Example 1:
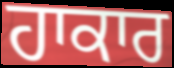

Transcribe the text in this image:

ਹਾਕਾਰ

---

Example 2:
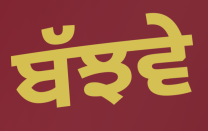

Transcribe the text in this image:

ਬੱਝਵੇ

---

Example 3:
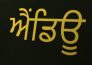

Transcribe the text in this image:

ਐਂਡਿਊ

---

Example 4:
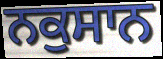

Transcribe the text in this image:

ਨਕੁਸਾਨ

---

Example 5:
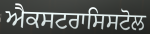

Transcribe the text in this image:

ਐਕਸਟਰਾਸਿਸਟੋਲ